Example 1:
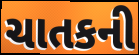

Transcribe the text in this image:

ચાતકની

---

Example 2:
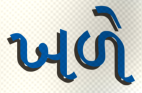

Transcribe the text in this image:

ખળે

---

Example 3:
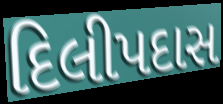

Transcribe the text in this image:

દિલીપદાસ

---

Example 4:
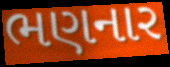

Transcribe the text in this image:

ભણનાર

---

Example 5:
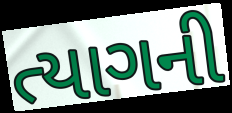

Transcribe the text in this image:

ત્યાગની